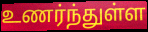
உணர்ந்துள்ள